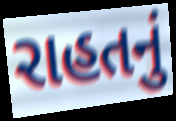
રાહતનું